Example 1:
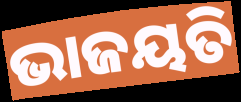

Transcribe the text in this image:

ଭାଜୟତି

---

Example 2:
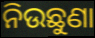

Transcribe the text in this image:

ନିଉଛୁଣା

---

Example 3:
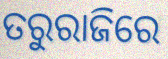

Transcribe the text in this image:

ତରୁରାଜିରେ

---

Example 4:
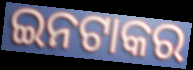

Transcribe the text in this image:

ଇନଟାକର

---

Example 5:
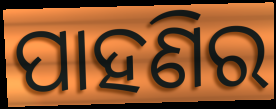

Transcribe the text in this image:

ପାହଣିର